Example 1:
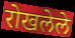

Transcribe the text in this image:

रोखलेले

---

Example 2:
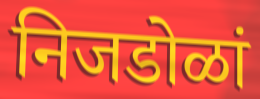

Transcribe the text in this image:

निजडोळां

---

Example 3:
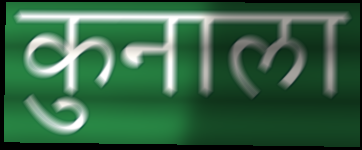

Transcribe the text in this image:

कुनाला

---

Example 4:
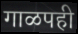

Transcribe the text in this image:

गाळपही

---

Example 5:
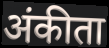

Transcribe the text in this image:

अंकीता